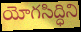
యోగసిద్ధిని